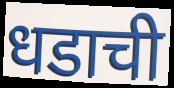
धडाची